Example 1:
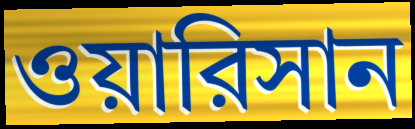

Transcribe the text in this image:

ওয়ারিসান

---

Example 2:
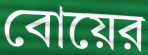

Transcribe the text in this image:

বোয়ের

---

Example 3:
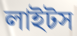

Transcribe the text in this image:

লাইটস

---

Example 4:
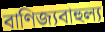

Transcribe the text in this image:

বাণিজ্যবাহুল্য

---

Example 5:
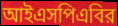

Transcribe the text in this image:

আইএসপিএবির